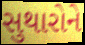
સુથારોને